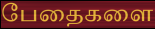
பேதைகளை